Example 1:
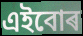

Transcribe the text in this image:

এইবোৰ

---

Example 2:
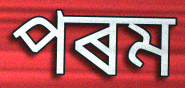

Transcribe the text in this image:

পৰম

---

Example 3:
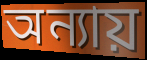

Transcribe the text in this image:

অন্যায়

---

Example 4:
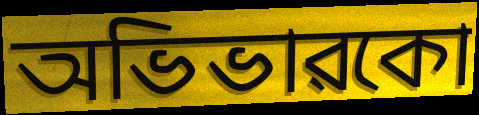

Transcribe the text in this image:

অভিভাৱকো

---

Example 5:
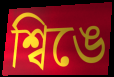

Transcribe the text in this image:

শ্বিঙে